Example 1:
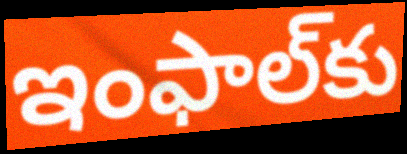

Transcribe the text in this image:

ఇంఫాల్‌కు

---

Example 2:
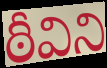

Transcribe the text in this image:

ఠీవిని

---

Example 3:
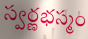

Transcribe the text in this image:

స్వర్ణభస్మం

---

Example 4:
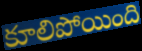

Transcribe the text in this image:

కూలిపోయింది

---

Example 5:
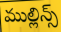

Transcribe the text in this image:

ముల్లిన్స్